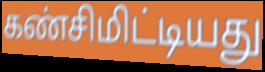
கண்சிமிட்டியது